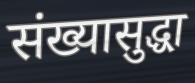
संख्यासुद्धा